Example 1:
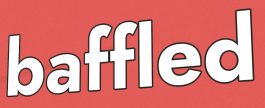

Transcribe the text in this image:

baffled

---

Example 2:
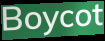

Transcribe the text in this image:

Boycot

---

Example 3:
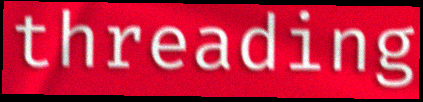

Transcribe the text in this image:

threading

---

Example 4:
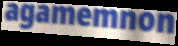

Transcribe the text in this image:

agamemnon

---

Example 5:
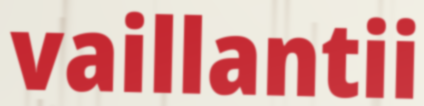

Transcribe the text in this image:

vaillantii